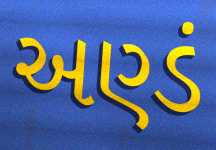
અણ્ડં